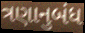
ત્રણાનુબંધ